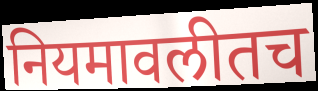
नियमावलीतच